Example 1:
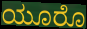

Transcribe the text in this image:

ಯೂರೊ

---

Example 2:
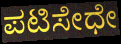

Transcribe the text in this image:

ಪಟಿಸೇಧೇ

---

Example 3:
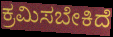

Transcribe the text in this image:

ಕ್ರಮಿಸಬೇಕಿದೆ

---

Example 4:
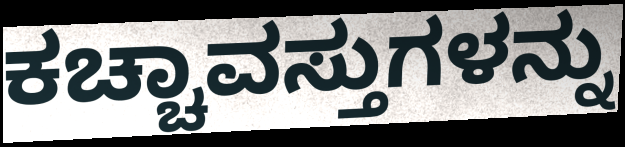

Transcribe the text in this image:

ಕಚ್ಚಾವಸ್ತುಗಳನ್ನು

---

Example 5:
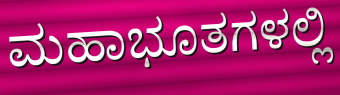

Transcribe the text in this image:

ಮಹಾಭೂತಗಳಲ್ಲಿ